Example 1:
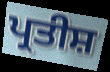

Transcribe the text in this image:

ਪ੍ਰਤੀਸ਼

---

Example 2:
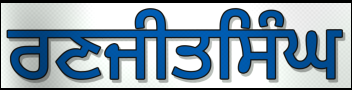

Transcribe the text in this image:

ਰਣਜੀਤਸਿੰਘ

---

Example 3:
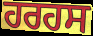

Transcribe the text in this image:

ਹਰਹਸ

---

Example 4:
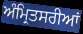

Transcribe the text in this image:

ਅੰਮ੍ਰਿਤਸਰੀਆਂ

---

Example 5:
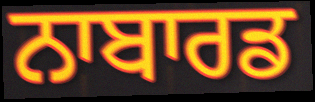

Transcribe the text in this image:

ਨਾਬਾਰਡ